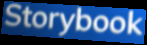
Storybook